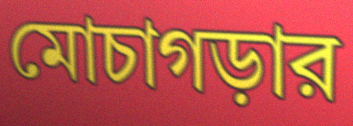
মোচাগড়ার